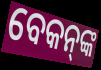
ବେକନ୍‌ଙ୍କ